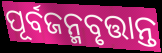
ପୂର୍ବଜନ୍ମବୃତ୍ତାନ୍ତ